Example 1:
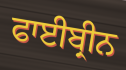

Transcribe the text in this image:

ਫਾਈਬ੍ਰੀਨ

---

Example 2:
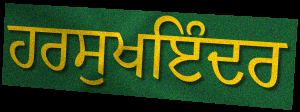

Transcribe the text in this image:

ਹਰਸੁਖਇੰਦਰ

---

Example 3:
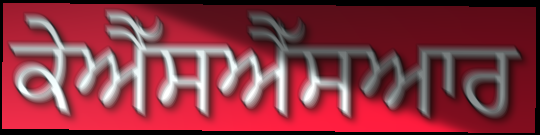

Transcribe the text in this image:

ਕੇਐੱਸਐੱਸਆਰ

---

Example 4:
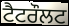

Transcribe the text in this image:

ਟੈਟਰੌਲਟ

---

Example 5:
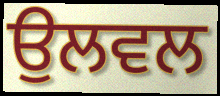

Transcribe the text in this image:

ਉਲਵਲ